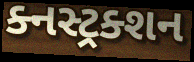
ક્નસ્ટ્રક્શન